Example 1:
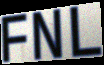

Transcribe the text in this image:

FNL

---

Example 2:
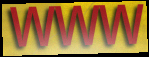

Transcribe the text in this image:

www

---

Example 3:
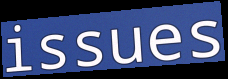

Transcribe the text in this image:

issues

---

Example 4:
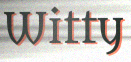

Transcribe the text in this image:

Witty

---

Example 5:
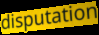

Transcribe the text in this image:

disputation